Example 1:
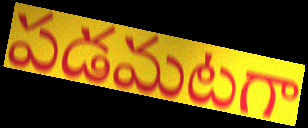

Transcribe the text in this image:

పడమటగా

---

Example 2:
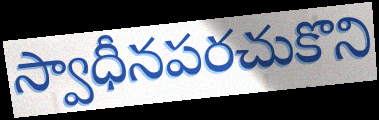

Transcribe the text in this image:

స్వాధీనపరచుకొని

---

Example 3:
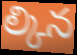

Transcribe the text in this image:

ల్కిన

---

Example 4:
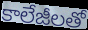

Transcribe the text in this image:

కాలేజీలతో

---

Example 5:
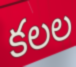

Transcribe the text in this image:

కలల